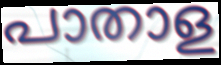
പാതാള